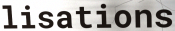
lisations